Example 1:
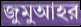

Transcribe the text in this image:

জুমুআহর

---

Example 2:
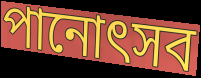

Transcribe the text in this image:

পানোৎসব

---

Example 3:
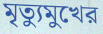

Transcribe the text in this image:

মৃত্যুমুখের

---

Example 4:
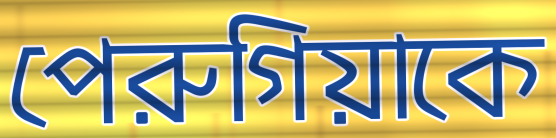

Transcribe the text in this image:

পেরুগিয়াকে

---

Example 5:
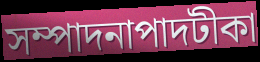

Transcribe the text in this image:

সম্পাদনাপাদটীকা